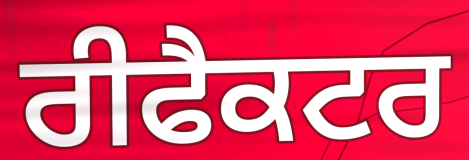
ਰੀਫੈਕਟਰ